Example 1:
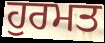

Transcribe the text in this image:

ਹੁਰਮਤ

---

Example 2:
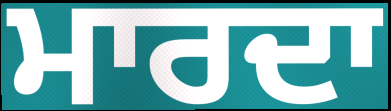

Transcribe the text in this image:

ਮਾਰਦਾ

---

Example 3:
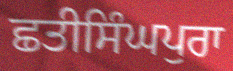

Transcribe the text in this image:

ਛਤੀਸਿੰਘਪੁਰਾ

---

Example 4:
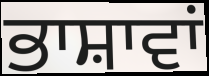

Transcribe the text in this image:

ਭਾਸ਼ਾਵਾਂ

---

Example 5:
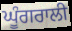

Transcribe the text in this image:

ਘੂੰਗਰਾਲੀ